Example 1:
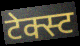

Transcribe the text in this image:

टेक्स्ट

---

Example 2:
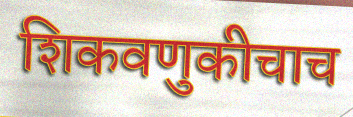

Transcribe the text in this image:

शिकवणुकीचाच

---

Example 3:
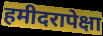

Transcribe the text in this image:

हमीदरापेक्षा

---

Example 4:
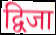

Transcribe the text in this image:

द्विजा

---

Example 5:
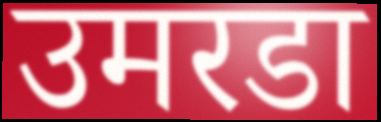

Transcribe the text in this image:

उमरडा